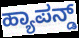
ಹ್ಯಾಪನ್ಡ್